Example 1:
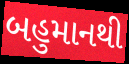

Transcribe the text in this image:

બહુમાનથી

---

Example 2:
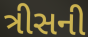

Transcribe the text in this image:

ત્રીસની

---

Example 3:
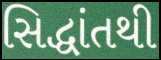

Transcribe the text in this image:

સિદ્ધાંતથી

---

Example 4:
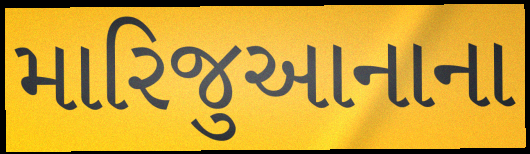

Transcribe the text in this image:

મારિજુઆનાના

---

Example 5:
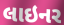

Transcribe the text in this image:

લાઇનર